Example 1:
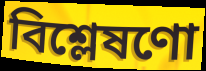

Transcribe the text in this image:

বিশ্লেষণো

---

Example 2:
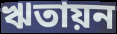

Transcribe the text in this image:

ঋতায়ন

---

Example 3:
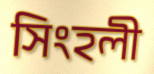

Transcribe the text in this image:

সিংহলী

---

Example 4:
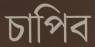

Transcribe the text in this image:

চাপিব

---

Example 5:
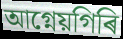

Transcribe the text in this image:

আগ্নেয়গিৰি